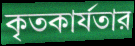
কৃতকার্যতার